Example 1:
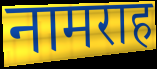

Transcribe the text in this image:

नामराह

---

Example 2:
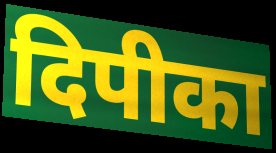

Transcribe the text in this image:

दिपीका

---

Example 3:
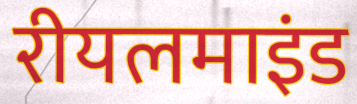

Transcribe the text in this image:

रीयलमाइंड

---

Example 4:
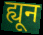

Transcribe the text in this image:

ह्यून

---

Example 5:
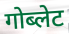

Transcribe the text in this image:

गोब्लेट